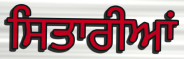
ਸਿਤਾਰੀਆਂ